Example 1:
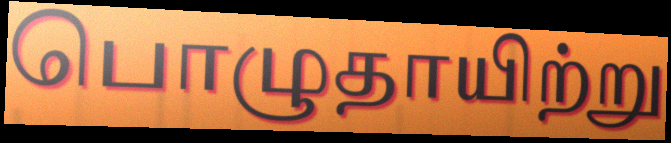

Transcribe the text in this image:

பொழுதாயிற்று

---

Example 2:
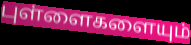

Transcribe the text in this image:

புள்ளைகளையும்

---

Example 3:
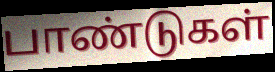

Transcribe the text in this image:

பாண்டுகள்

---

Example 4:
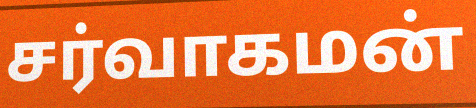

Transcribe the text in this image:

சர்வாகமன்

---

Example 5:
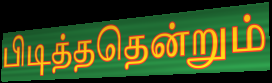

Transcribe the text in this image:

பிடித்ததென்றும்